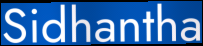
Sidhantha